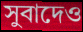
সুবাদেও